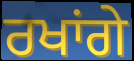
ਰਖਾਂਗੇ